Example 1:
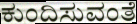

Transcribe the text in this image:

ಕುಂದಿಸುವಂತೆ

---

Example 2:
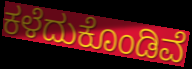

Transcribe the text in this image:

ಕಳೆದುಕೊಂಡಿವೆ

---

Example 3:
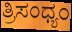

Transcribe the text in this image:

ತ್ರಿಸಂಧ್ಯಂ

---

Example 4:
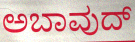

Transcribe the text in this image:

ಅಬಾವುದ್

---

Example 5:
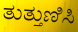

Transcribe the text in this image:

ತುತ್ತುಣಿಸಿ